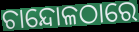
ଚାନ୍ଦୋଳଠାରେ